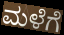
ಮಳೆಗೆ